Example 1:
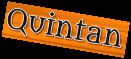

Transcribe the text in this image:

Quintan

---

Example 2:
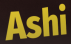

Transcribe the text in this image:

Ashi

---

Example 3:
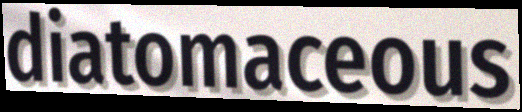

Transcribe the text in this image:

diatomaceous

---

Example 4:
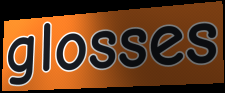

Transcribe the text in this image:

glosses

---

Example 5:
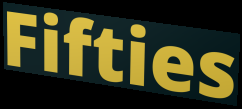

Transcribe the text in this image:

Fifties